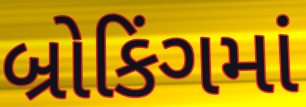
બ્રોકિંગમાં